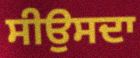
ਸੀਉਸਦਾ